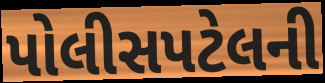
પોલીસપટેલની